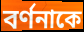
বর্ণনাকে